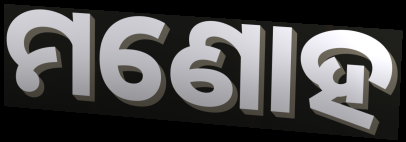
ମଣୋହ